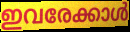
ഇവരേക്കാൾ